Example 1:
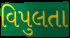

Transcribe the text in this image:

વિપુલતા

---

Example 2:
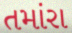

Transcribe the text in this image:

તમાંરા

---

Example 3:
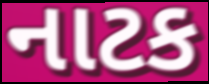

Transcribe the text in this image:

નાટક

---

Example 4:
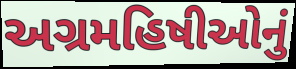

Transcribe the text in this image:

અગ્રમહિષીઓનું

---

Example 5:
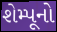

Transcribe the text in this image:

શેમ્પૂનો